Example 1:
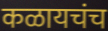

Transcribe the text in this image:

कळायचंच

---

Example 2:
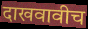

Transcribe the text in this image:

दाखवावीच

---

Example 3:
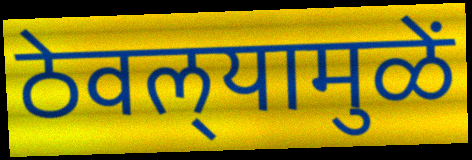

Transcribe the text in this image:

ठेवल्यामुळें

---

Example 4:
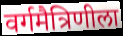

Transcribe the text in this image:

वर्गमैत्रिणीला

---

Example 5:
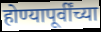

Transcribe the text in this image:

होण्यापूर्वींच्या